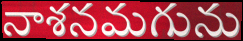
నాశనమగును